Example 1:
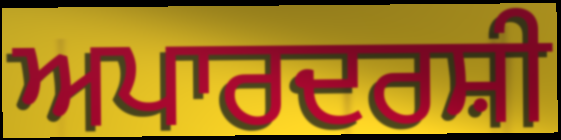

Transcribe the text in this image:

ਅਪਾਰਦਰਸ਼ੀ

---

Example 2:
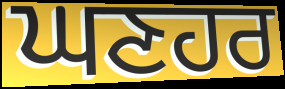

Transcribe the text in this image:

ਘਣਹਰ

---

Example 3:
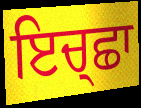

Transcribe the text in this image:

ਇਚ੍ਛਾ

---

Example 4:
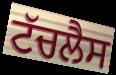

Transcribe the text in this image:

ਟੱਚਲੈਸ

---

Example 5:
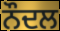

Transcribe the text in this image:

ਨੌਦਲ